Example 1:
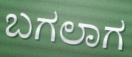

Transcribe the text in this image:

ಬಗಲಾಗ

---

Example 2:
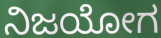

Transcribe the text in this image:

ನಿಜಯೋಗ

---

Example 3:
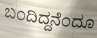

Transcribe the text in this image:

ಬಂದಿದ್ದನೆಂದೂ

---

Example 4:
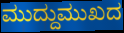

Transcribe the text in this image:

ಮುದ್ದುಮುಖದ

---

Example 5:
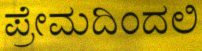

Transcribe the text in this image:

ಪ್ರೇಮದಿಂದಲಿ